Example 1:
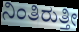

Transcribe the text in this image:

ನಿಂತಿರುತ್ತೀ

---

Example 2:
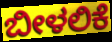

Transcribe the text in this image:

ಬೀಳಲಿಕೆ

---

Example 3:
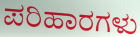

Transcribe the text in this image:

ಪರಿಹಾರಗಳು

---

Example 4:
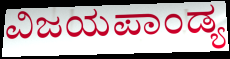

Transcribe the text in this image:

ವಿಜಯಪಾಂಡ್ಯ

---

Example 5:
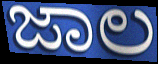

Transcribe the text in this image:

ಜಾಲ